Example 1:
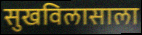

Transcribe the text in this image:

सुखविलासाला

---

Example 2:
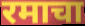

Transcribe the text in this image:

रमाचा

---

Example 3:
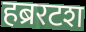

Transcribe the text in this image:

हब्ररटश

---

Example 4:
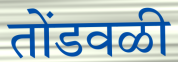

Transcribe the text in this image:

तोंडवळी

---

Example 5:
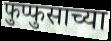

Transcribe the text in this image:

फुप्फुसाच्या